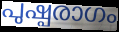
പുഷ്പരാഗം